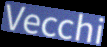
Vecchi